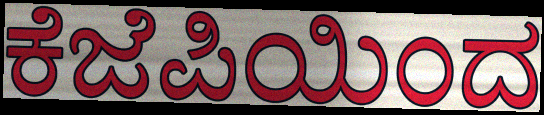
ಕೆಜೆಪಿಯಿಂದ